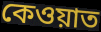
কেওয়াত